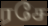
ரசே